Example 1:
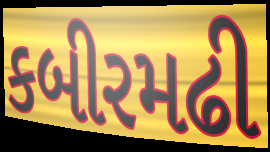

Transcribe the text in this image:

કબીરમઢી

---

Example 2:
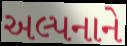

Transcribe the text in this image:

અલ્પનાને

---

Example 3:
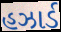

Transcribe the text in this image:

હઝાર્ડ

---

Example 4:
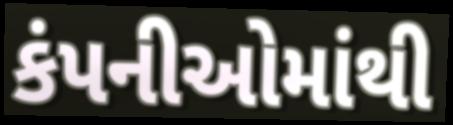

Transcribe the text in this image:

કંપનીઓમાંથી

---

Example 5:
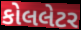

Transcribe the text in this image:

કોલલેટર